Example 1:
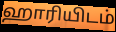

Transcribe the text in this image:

ஹாரியிடம்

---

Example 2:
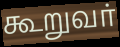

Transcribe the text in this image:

கூறுவர்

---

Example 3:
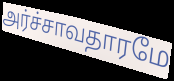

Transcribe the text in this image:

அர்ச்சாவதாரமே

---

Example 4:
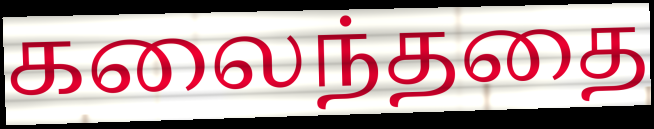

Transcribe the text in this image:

கலைந்ததை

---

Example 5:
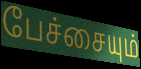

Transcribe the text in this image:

பேச்சையும்